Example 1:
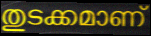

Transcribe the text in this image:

തുടക്കമാണ്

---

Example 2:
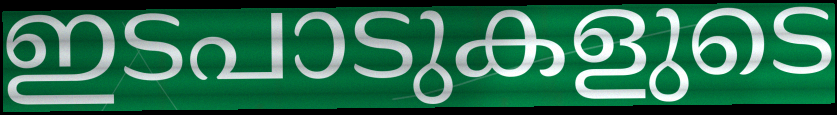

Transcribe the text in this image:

ഇടപാടുകളുടെ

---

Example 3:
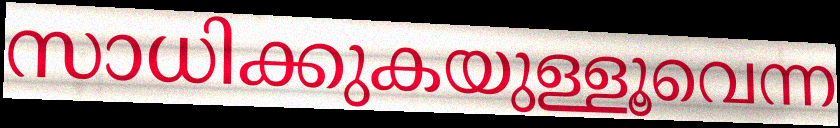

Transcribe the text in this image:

സാധിക്കുകയുള്ളൂവെന്ന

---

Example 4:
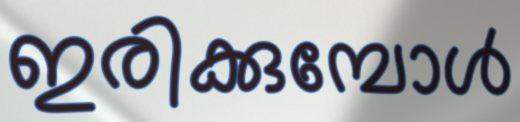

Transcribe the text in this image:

ഇരിക്കുമ്പോൾ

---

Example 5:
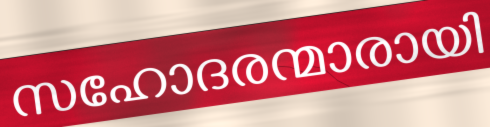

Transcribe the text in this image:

സഹോദരന്മാരായി